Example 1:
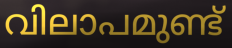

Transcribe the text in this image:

വിലാപമുണ്ട്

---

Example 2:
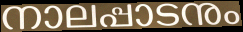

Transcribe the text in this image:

നാലപ്പാടനും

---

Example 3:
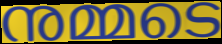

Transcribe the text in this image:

നുമ്മടെ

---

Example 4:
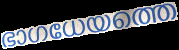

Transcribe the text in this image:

ഭാഗധേയത്തെ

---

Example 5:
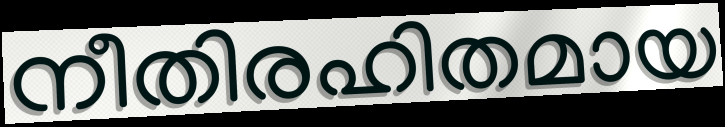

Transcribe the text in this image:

നീതിരഹിതമായ